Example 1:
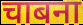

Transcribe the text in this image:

चाबना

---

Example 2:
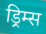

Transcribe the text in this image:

ड्रिम्स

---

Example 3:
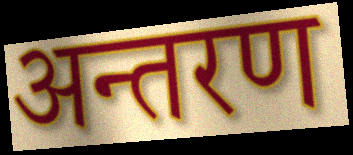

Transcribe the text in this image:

अन्तरण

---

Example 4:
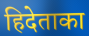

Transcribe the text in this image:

हिदेताका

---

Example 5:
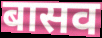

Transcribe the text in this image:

बासव